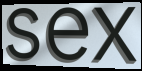
sex